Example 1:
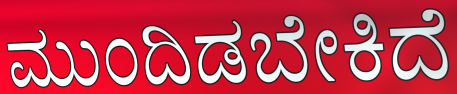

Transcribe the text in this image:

ಮುಂದಿಡಬೇಕಿದೆ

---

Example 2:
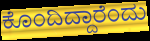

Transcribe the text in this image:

ಕೊಂದಿದ್ದಾರೆಂದು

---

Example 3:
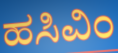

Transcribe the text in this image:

ಹಸಿವಿಂ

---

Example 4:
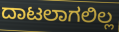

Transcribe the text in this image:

ದಾಟಲಾಗಲಿಲ್ಲ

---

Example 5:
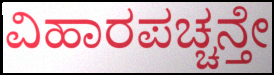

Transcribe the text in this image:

ವಿಹಾರಪಚ್ಚನ್ತೇ